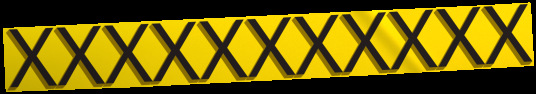
XXXXXXXXXXX